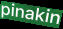
pinakin